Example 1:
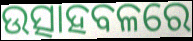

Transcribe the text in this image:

ଉତ୍ସାହବଳରେ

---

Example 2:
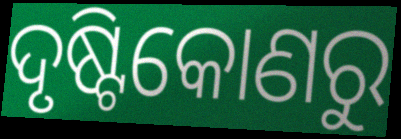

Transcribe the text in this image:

ଦୃଷ୍ଟିକୋଣରୁ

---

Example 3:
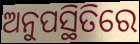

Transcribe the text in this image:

ଅନୁପସ୍ଥିତିରେ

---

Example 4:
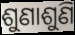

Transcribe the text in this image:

ଶୁଣାଶୁଣି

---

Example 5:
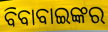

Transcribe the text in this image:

ବିବାବାଇଙ୍କର